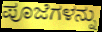
ಪೂಜೆಗಳನ್ನು